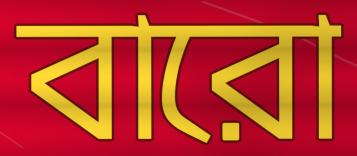
বারো